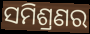
ସମିଶ୍ରଣର